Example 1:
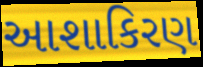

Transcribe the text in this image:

આશાકિરણ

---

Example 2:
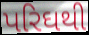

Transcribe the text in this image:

પરિઘથી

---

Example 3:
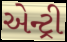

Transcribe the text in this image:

એન્ટ્રી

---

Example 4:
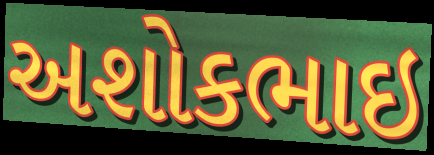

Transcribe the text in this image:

અશોકભાઇ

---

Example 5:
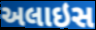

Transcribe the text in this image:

અલાઇસ